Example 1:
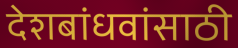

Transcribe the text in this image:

देशबांधवांसाठी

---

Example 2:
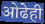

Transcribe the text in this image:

ओढेही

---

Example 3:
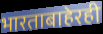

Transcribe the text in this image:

भारताबाहेरही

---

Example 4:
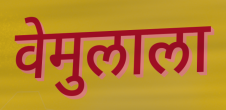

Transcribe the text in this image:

वेमुलाला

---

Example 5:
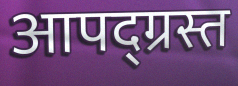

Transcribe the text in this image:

आपद्ग्रस्त